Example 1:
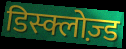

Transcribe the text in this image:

डिस्क्लोज़्ड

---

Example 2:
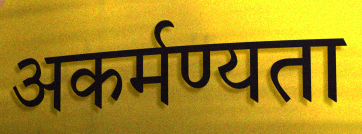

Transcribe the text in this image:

अकर्मण्यता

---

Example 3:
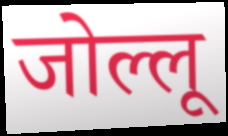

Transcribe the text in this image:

जोल्लू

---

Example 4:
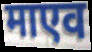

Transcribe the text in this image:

माएव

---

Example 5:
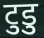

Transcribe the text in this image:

टुडु